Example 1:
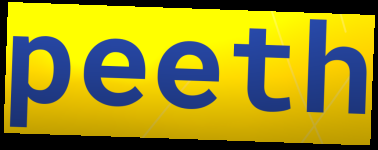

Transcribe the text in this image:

peeth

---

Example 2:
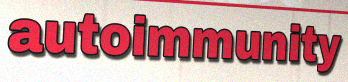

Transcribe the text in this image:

autoimmunity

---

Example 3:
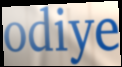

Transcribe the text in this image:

odiye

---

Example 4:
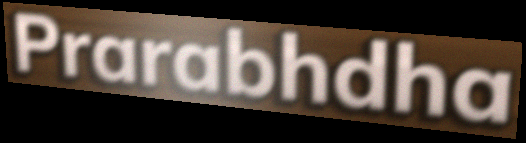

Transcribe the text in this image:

Prarabhdha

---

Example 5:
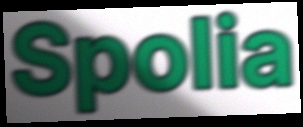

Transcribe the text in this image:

Spolia